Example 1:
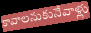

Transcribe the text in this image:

కావాలనుకునేవాళ్లు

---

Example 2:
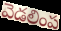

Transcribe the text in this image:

వెడలింప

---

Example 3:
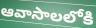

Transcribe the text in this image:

ఆవాసాలలోకి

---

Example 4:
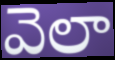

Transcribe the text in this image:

వెలా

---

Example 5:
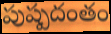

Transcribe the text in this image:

పుష్పదంతం